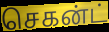
செகன்ட்